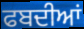
ਫਬਦੀਆਂ